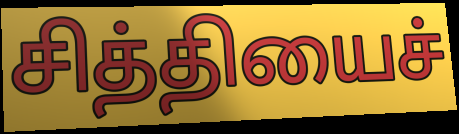
சித்தியைச்